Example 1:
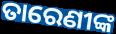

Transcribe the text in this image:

ତାରେଣୀଙ୍କ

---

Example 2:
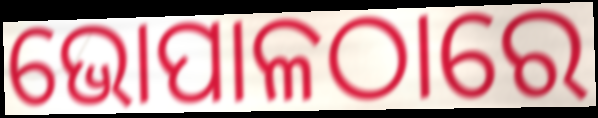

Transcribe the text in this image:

ଭୋପାଳଠାରେ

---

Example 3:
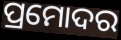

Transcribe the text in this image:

ପ୍ରମୋଦର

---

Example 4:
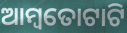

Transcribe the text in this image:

ଆମ୍ବତୋଟାଟି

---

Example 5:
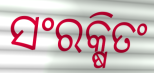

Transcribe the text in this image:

ସଂରକ୍ଷିତଂ